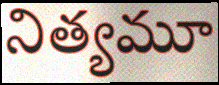
నిత్యమూ